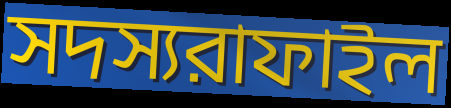
সদস্যরাফাইল